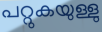
പറ്റുകയുള്ളു